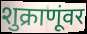
शुक्राणूंवर